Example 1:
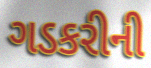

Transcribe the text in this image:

ગડકરીની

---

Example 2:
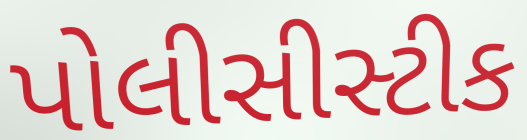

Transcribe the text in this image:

પોલીસીસ્ટીક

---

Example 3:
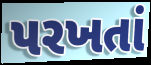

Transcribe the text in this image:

પરખતાં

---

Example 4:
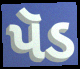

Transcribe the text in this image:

પૅડ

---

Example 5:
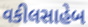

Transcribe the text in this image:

વકીલસાહેબ